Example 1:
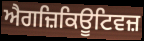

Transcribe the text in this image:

ਐਗਜ਼ਿਕਿਊਟਿਵਜ਼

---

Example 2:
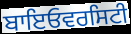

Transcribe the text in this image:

ਬਾਇਓਵਰਸਿਟੀ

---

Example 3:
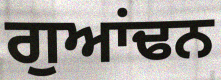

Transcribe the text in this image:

ਗੁਆਂਢਨ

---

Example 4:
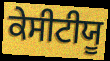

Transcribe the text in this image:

ਕੇਸੀਟੀਯੂ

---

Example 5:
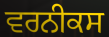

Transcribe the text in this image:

ਵਰਨੀਕਸ